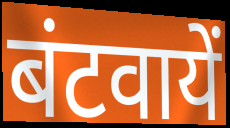
बंटवायें